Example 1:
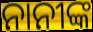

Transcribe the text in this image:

ନାନୀଙ୍କ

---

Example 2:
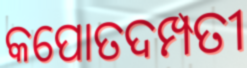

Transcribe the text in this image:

କପୋତଦମ୍ପତୀ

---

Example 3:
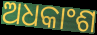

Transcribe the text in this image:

ଅଧକାଂଶ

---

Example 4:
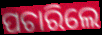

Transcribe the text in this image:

ପଚାରିଲେ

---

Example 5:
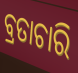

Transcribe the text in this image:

ବ୍ରତାଚାରି